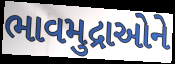
ભાવમુદ્રાઓને